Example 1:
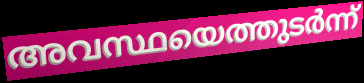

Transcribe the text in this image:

അവസ്ഥയെത്തുടർന്ന്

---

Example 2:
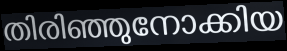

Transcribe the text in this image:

തിരിഞ്ഞുനോക്കിയ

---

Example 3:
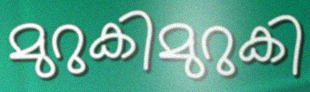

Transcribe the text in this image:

മുറുകിമുറുകി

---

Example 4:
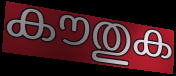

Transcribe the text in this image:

കൗതുക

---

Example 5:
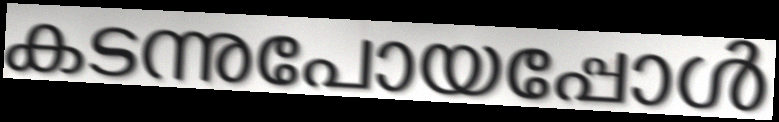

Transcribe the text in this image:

കടന്നുപോയപ്പോൾ